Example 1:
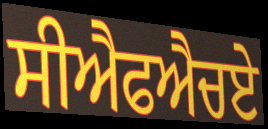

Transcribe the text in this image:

ਸੀਐਫਐਚਏ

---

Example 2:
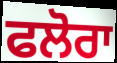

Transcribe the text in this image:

ਫਲੋਰਾ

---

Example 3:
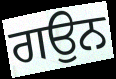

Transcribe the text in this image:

ਗਉਨ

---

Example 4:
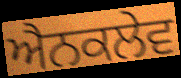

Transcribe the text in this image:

ਐਨਕਲੇਵ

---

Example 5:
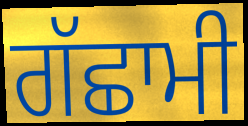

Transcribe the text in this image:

ਗੱਛਾਮੀ